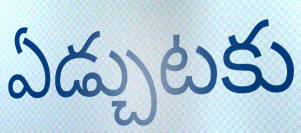
ఏడ్చుటకు